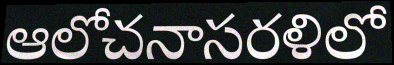
ఆలోచనాసరళిలో